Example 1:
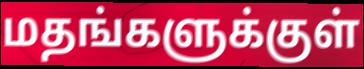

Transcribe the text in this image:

மதங்களுக்குள்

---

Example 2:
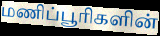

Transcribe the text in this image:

மணிப்பூரிகளின்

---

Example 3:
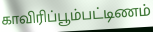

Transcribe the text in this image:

காவிரிப்பூம்பட்டிணம்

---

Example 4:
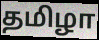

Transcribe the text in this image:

தமிழா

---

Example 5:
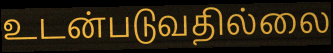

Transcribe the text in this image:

உடன்படுவதில்லை